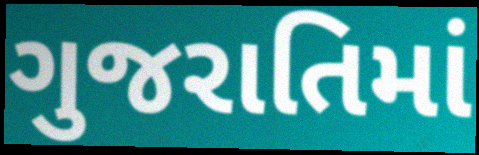
ગુજરાતિમાં